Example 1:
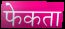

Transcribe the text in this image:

फेकता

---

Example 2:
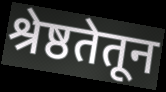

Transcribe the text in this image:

श्रेष्ठतेतून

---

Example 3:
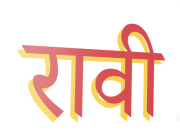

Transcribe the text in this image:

रावी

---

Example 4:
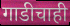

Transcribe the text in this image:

गाडीचाही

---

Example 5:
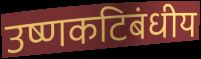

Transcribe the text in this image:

उष्णकटिबंधीय